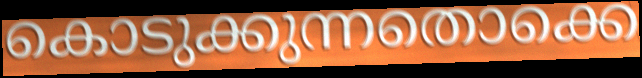
കൊടുക്കുന്നതൊക്കെ